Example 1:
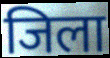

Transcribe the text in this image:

जिला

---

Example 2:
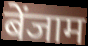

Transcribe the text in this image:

बेंजाम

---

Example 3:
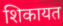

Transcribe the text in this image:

शिकायत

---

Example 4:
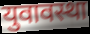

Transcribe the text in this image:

युवावस्था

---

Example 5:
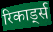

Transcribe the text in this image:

रिकार्ड्स